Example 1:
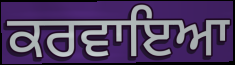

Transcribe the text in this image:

ਕਰਵਾਇਆ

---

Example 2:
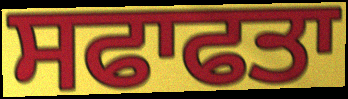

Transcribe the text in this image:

ਸਫਾਫਤਾ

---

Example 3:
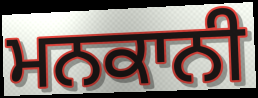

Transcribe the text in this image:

ਮਨਕਾਨੀ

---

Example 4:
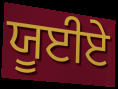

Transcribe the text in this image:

ਯੂਈਏ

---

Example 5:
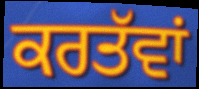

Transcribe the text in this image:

ਕਰਤੱਵਾਂ